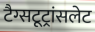
टैग्सटूट्रांसलेट